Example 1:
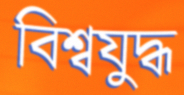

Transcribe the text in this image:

বিশ্বযুদ্ধ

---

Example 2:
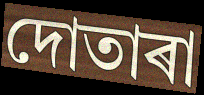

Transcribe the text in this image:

দোতাৰা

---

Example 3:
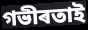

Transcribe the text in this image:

গভীৰতাই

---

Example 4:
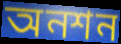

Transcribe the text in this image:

অনশন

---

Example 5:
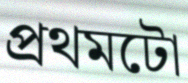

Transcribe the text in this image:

প্ৰথমটো